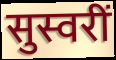
सुस्वरीं